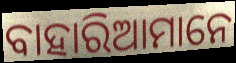
ବାହାରିଆମାନେ